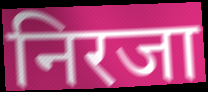
निरजा